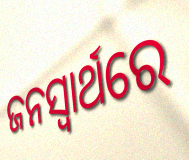
ଜନସ୍ୱାର୍ଥରେ